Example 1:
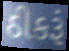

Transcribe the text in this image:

ઠીકરૂં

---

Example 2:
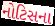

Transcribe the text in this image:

નોટિસના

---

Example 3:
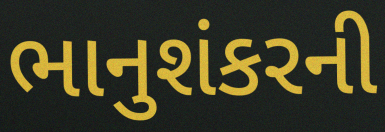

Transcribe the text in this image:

ભાનુશંકરની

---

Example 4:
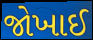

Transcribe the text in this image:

જોખાઈ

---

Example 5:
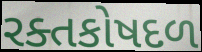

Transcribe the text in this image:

રક્તકોષદળ